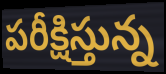
పరీక్షిస్తున్న